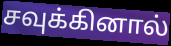
சவுக்கினால்